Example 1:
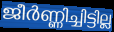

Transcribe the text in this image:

ജീർണ്ണിച്ചിട്ടില്ല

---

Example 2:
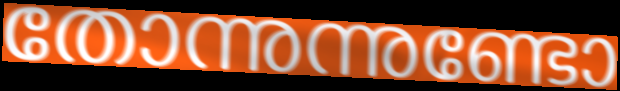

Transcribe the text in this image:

തോന്നുന്നുണ്ടോ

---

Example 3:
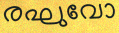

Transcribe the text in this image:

രഘുവോ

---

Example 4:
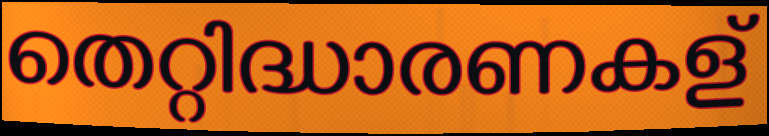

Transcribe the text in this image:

തെറ്റിദ്ധാരണകള്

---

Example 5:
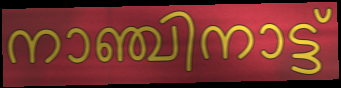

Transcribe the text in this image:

നാഞ്ചിനാട്ട്